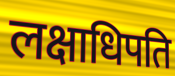
लक्षाधिपति